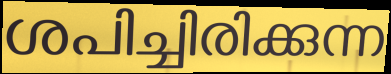
ശപിച്ചിരിക്കുന്ന